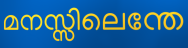
മനസ്സിലെന്തേ